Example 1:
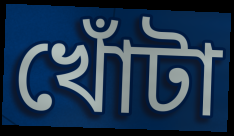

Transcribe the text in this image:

খোঁটা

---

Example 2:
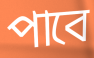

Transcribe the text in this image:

পাবে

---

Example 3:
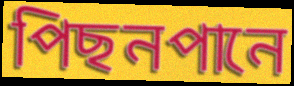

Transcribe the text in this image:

পিছনপানে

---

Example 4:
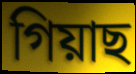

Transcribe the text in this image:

গিয়াছ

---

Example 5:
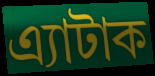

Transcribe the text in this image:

এ্যাটাক